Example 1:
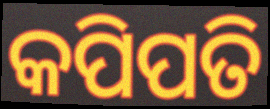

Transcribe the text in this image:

କପିପତି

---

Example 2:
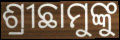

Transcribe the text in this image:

ଶ୍ରୀଛାମୁଙ୍କୁ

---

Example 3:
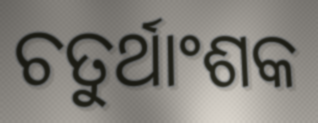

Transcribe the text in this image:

ଚତୁର୍ଥାଂଶକ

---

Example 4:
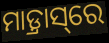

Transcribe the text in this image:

ମାଡ଼୍ରାସ୍‌ରେ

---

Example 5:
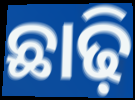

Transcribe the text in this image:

ଛାଢ଼ି